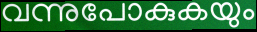
വന്നുപോകുകയും